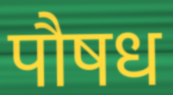
पौषध